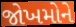
જોખમોને